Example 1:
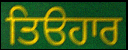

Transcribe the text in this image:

ਤਿੳਹਾਰ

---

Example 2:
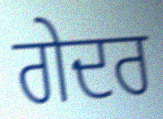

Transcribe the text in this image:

ਗੇਦਰ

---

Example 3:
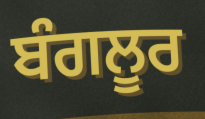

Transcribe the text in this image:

ਬੰਗਲੂਰ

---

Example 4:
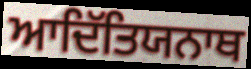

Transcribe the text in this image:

ਆਦਿੱਤਿਯਨਾਥ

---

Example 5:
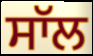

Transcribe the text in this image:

ਸਾੱਲ